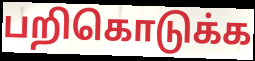
பறிகொடுக்க